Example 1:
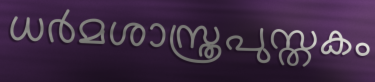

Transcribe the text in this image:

ധർമശാസ്ത്രപുസ്തകം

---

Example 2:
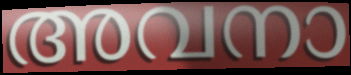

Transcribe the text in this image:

അവനാ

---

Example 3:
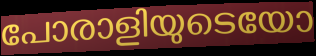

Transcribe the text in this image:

പോരാളിയുടെയോ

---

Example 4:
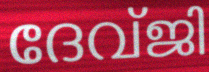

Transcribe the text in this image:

ദേവ്ജി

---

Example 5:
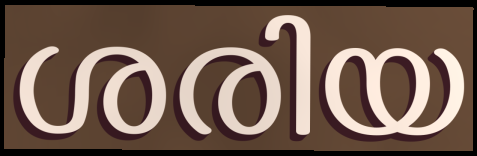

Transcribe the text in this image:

ശരിയ